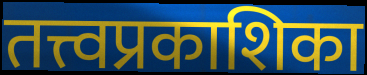
तत्त्वप्रकाशिका